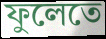
ফুলেতে